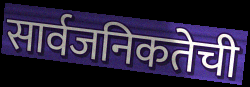
सार्वजनिकतेची